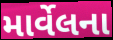
માર્વેલના